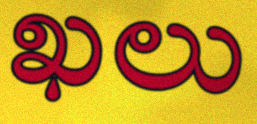
ఖలు